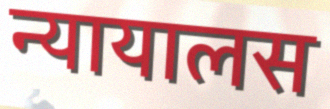
न्यायालस